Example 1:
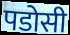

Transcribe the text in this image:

पडोसी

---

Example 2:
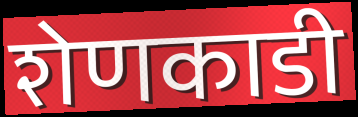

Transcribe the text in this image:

शेणकाडी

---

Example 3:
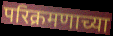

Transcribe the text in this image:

परिक्रमणाच्या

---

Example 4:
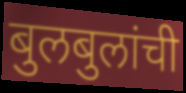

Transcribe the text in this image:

बुलबुलांची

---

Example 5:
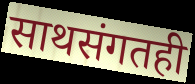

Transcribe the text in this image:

साथसंगतही